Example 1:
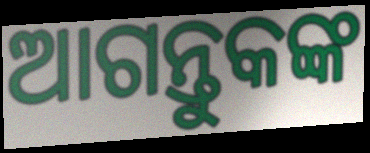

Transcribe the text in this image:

ଆଗନ୍ତୁକଙ୍କ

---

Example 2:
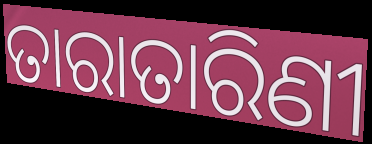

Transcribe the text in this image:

ତାରାତାରିଣୀ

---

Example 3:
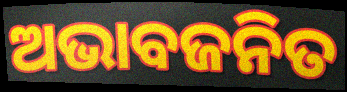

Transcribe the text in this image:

ଅଭାବଜନିତ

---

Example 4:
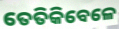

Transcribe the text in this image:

ତେତିକିବେଳେ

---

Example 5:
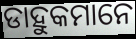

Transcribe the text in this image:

ଡାହୁକମାନେ